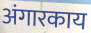
अंगारकाय